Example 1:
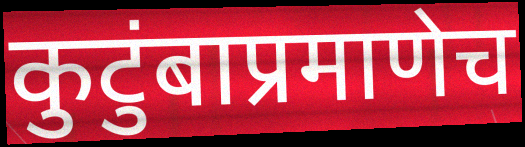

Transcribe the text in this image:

कुटुंबाप्रमाणेच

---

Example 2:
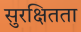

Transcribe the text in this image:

सुरक्षितता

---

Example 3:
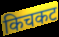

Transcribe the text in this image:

किचकट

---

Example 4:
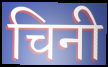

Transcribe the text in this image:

चिनी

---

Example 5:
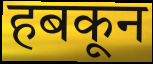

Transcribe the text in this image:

हबकून